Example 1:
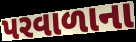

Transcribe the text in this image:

પરવાળાના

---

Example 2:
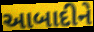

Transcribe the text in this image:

આબાદીને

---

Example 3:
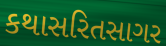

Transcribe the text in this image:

કથાસરિતસાગર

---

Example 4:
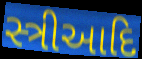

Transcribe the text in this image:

સ્ત્રીઆદિ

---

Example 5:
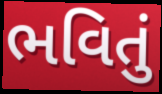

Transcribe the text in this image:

ભવિતું